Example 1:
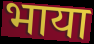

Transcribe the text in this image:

भाया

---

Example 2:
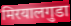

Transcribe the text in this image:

मिरयालगुडा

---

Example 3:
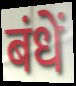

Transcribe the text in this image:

बंधें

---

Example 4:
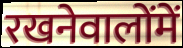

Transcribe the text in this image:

रखनेवालोंमें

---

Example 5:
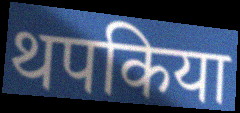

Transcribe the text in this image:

थपकिया